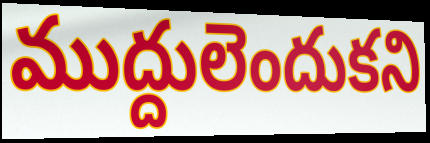
ముద్దులెందుకని